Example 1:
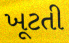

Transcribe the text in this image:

ખૂટતી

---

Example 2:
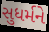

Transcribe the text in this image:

સુધર્મને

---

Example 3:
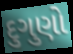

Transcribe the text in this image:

દુગુણો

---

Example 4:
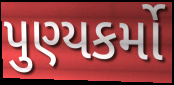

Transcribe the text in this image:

પુણ્યકર્મો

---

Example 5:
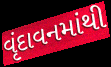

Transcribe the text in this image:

વૃંદાવનમાંથી